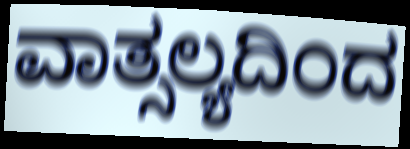
ವಾತ್ಸಲ್ಯದಿಂದ